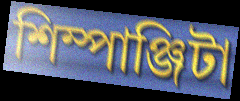
শিম্পাঞ্জিটা